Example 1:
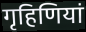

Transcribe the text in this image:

गृहिणियां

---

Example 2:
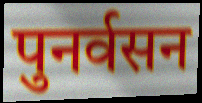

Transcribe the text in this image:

पुनर्वसन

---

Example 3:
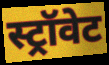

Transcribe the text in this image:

स्ट्रॉवेट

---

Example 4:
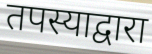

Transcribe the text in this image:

तपस्याद्वारा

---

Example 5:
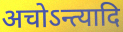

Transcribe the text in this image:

अचोऽन्त्यादि